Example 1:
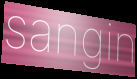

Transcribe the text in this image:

sangin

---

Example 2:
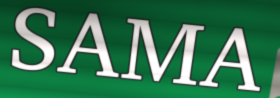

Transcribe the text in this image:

SAMA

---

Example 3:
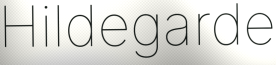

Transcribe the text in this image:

Hildegarde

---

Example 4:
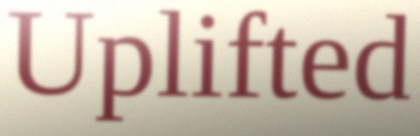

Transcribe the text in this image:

Uplifted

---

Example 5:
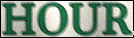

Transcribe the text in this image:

HOUR